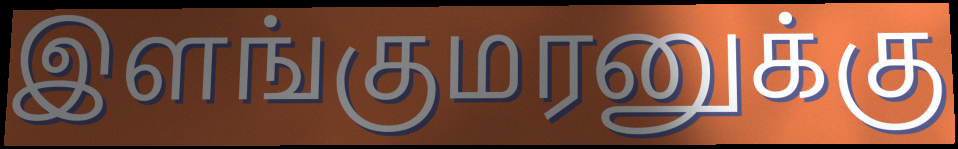
இளங்குமரனுக்கு